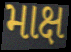
માક્ષ